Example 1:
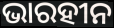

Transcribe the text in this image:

ଭାରହୀନ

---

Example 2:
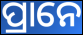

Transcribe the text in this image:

ପ୍ରାନେ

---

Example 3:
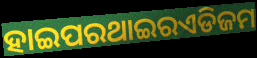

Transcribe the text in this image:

ହାଇପରଥାଇରଏଡିଜମ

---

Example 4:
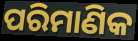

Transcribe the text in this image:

ପରିମାଣିକ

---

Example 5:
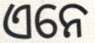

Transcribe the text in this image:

ଏନେ